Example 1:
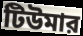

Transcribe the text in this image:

টিউমার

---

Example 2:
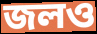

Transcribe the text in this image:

জলও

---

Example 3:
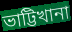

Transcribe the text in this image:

ভাট্টিখানা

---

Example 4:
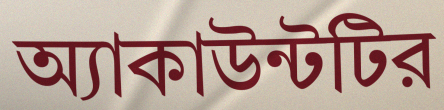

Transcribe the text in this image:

অ্যাকাউন্টটির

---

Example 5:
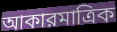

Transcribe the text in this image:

আকারমাত্রিক